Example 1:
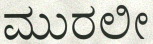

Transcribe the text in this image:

ಮುರಲೀ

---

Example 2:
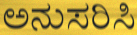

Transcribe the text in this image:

ಅನುಸರಿಸಿ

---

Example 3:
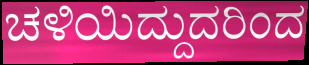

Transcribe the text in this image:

ಚಳಿಯಿದ್ದುದರಿಂದ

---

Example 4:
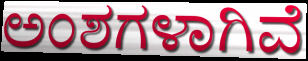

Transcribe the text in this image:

ಅಂಶಗಳಾಗಿವೆ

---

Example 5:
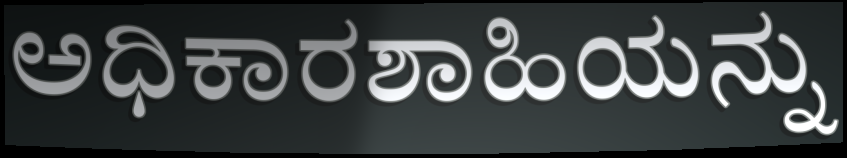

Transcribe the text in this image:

ಅಧಿಕಾರಶಾಹಿಯನ್ನು